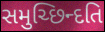
સમુચ્છિન્દતિ